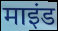
माइंड